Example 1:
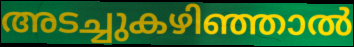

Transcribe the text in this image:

അടച്ചുകഴിഞ്ഞാൽ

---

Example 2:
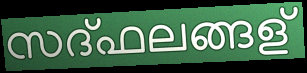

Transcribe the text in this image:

സദ്ഫലങ്ങള്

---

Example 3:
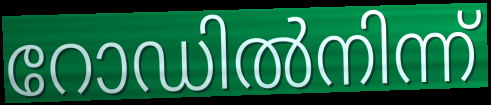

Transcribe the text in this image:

റോഡിൽനിന്ന്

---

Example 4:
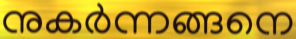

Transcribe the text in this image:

നുകർന്നങ്ങനെ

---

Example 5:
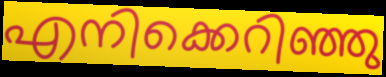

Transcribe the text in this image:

എനിക്കെറിഞ്ഞു